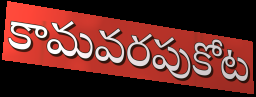
కామవరపుకోట